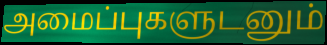
அமைப்புகளுடனும்